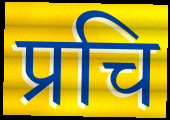
प्रचि